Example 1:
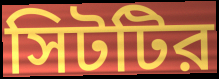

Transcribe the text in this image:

সিটটির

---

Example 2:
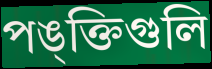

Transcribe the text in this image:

পঙ্‌ক্তিগুলি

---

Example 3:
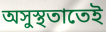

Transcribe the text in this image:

অসুস্থতাতেই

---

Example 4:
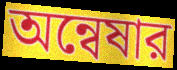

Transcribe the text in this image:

অন্বেষার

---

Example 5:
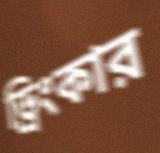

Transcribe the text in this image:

ড্রিংকার